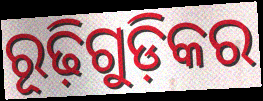
ରୂଢ଼ିଗୁଡ଼ିକର